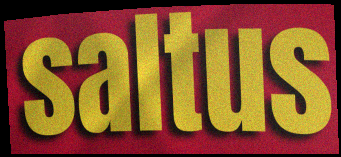
saltus